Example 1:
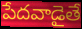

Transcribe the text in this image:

పేదవాడైతే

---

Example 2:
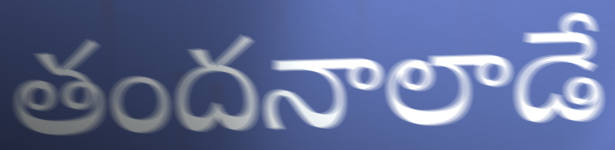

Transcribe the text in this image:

తందనాలాడే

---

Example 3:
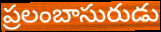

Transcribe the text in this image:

ప్రలంబాసురుడు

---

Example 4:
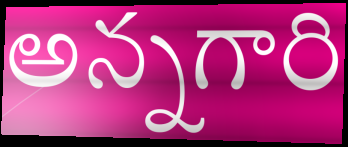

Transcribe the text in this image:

అన్నగారి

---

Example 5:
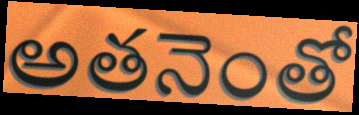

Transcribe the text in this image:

అతనెంతో